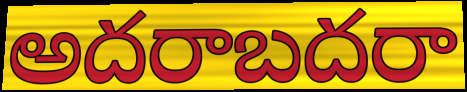
అదరాబదరా